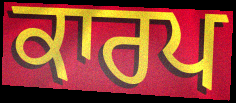
ਕਾਰਪ